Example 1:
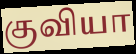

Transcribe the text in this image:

குவியா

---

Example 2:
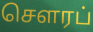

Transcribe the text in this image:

செளரப்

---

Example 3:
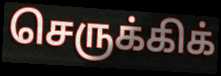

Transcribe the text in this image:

செருக்கிக்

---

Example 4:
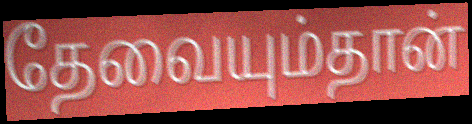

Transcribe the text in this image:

தேவையும்தான்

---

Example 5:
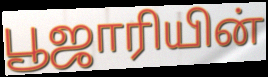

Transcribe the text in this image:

பூஜாரியின்